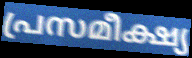
പ്രസമീക്ഷ്യ